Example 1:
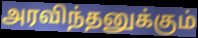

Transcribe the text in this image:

அரவிந்தனுக்கும்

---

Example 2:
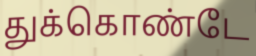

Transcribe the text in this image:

துக்கொண்டே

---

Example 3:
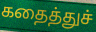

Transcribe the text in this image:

கதைத்துச்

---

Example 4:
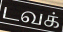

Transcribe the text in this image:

டவக்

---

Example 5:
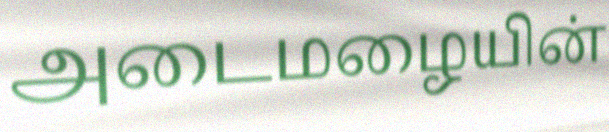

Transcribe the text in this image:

அடைமழையின்